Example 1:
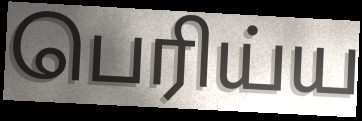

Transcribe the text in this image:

பெரிய்ய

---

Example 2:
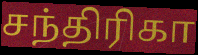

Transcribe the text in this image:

சந்திரிகா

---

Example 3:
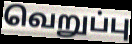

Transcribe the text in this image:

வெறுப்பு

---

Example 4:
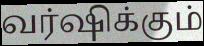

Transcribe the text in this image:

வர்ஷிக்கும்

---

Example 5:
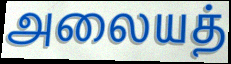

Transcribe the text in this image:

அலையத்